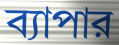
ব্যাপার